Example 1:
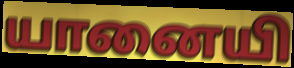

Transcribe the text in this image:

யானையி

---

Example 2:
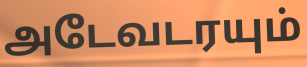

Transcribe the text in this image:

அடேவடரயும்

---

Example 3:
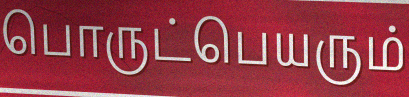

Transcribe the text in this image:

பொருட்பெயரும்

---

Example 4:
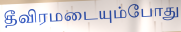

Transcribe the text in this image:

தீவிரமடையும்போது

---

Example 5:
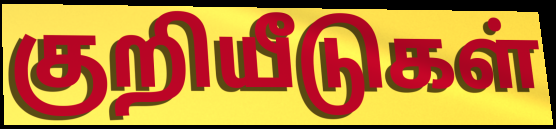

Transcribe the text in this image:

குறியீடுகள்